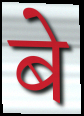
बे